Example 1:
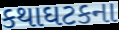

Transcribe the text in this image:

કથાઘટકના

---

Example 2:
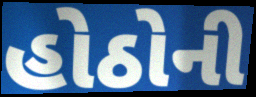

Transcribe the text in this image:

હોઠોની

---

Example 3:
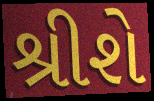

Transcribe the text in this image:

શ્રીશે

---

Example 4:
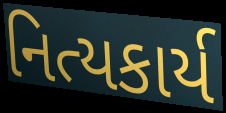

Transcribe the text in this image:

નિત્યકાર્ય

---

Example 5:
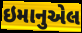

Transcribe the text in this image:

ઇમાનુએલ